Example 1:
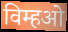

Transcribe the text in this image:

विम्हओ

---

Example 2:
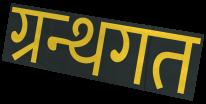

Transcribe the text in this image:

ग्रन्थगत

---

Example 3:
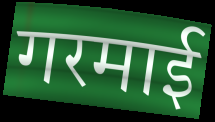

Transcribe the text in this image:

गरमाई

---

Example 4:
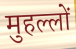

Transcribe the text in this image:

मुहल्लों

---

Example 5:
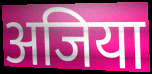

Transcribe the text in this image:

अजिया